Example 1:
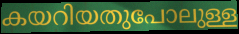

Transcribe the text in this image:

കയറിയതുപോലുള്ള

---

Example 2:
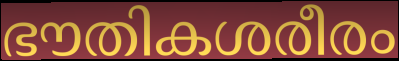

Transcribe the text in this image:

ഭൗതികശരീരം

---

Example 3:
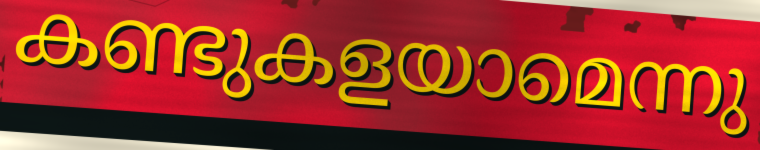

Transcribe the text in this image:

കണ്ടുകളയാമെന്നു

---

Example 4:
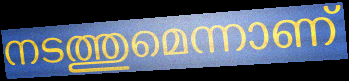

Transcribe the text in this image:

നടത്തുമെന്നാണ്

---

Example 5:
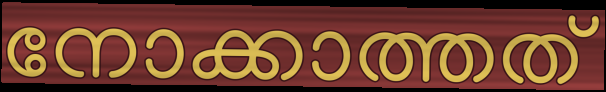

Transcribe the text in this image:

നോക്കാത്തത്